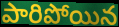
పారిపోయిన